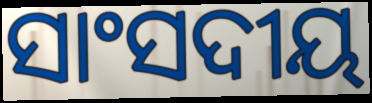
ସାଂସଦୀୟ